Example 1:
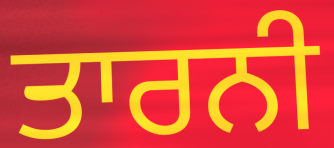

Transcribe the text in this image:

ਤਾਰਨੀ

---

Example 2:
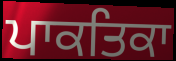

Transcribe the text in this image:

ਪਾਕਤਿਕਾ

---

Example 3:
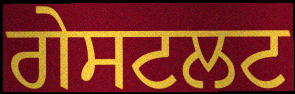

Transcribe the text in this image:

ਗੇਸਟਲਟ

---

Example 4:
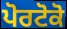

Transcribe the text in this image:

ਪੋਰਟੋਕੋ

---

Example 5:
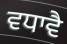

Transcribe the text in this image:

ਵਧਾਵੈ